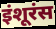
इंशूरंस